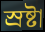
স্ৰষ্টা